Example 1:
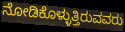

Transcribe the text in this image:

ನೋಡಿಕೊಳ್ಳುತ್ತಿರುವವರು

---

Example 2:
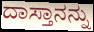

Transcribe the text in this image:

ದಾಸ್ತಾನನ್ನು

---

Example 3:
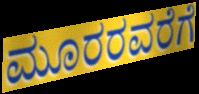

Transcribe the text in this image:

ಮೂರರವರೆಗೆ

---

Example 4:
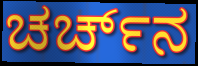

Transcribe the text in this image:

ಚರ್ಚ್‌ನ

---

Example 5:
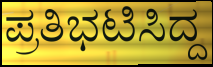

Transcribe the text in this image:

ಪ್ರತಿಭಟಿಸಿದ್ದ